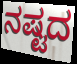
ನಷ್ಟದ